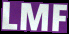
LMF